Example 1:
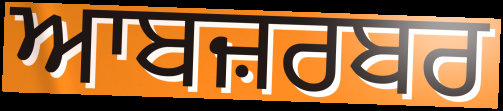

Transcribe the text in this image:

ਆਬਜ਼ਰਬਰ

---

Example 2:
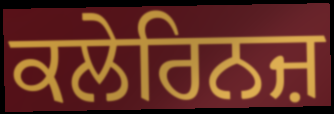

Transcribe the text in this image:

ਕਲੇਰਿਨਜ਼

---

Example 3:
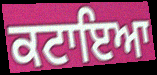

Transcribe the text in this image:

ਕਟਾਇਆ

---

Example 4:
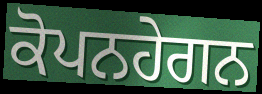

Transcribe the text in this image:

ਕੋਪਨਹੇਗਨ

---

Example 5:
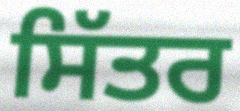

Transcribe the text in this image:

ਸਿੱਤਰ